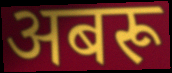
अबरू